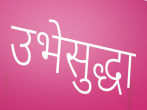
उभेसुद्धा